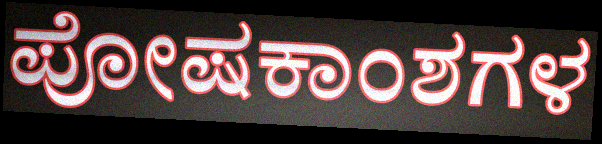
ಪೋಷಕಾಂಶಗಳ